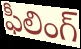
ఫీలింగ్